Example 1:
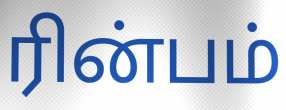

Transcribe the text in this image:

ரின்பம்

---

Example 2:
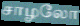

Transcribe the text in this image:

சாழலோ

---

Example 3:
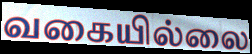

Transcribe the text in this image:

வகையில்லை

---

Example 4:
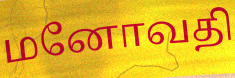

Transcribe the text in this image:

மனோவதி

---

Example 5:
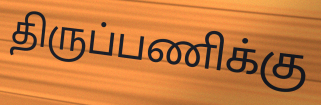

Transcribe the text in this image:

திருப்பணிக்கு